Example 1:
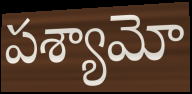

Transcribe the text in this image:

పశ్యామో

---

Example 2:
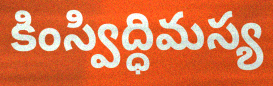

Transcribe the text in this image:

కింస్విద్ధిమస్య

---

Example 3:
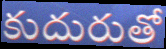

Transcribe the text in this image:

కుదురుతో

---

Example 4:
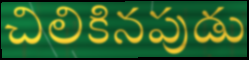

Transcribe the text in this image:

చిలికినపుడు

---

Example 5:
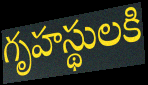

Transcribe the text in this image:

గృహస్థులకి